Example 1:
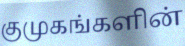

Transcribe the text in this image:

குமுகங்களின்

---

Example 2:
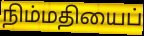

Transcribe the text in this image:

நிம்மதியைப்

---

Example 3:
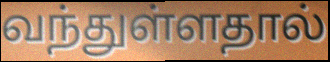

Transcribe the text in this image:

வந்துள்ளதால்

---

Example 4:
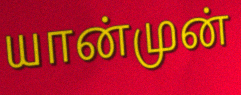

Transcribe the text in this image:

யான்முன்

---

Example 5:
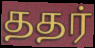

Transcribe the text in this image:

ததர்